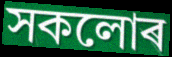
সকলোৰ